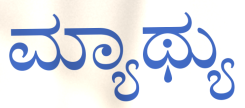
ಮ್ಯಾಥ್ಯು